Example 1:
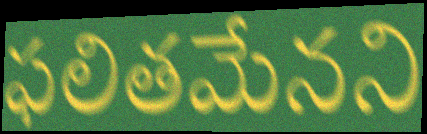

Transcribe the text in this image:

ఫలితమేనని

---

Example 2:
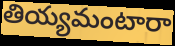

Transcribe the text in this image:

తియ్యమంటారా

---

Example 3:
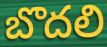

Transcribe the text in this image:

బొదలి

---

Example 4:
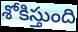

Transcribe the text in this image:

శోకిస్తుంది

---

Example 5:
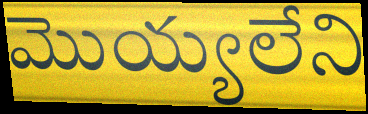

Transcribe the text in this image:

మొయ్యలేని